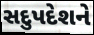
સદુપદેશને